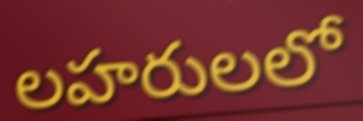
లహరులలో